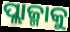
ପ୍ଲାଜ୍ମାକୁ